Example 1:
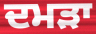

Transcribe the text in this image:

ਦਮੜਾ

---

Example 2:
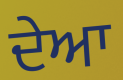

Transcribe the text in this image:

ਦੇਆ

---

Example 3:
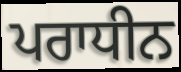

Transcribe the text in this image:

ਪਰਾਧੀਨ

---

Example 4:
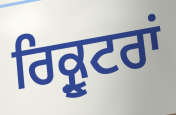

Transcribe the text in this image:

ਰਿਕ੍ਰੂਟਰਾਂ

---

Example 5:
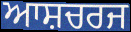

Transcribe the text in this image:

ਆਸ਼ਚਰਜ